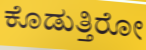
ಕೊಡುತ್ತಿರೋ